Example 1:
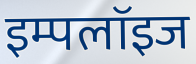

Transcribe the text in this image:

इम्पलॉइज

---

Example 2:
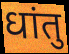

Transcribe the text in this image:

धांतु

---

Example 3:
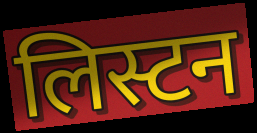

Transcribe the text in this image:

लिस्टन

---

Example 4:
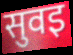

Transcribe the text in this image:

सुवइ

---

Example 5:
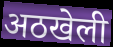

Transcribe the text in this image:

अठखेली